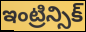
ఇంట్రిన్సిక్